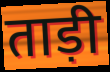
ताड़ी